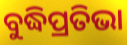
ବୁଦ୍ଧିପ୍ରତିଭା